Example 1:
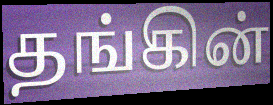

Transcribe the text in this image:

தங்கின்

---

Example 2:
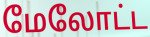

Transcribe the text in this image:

மேலோட்ட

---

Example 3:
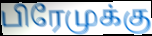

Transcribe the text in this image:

பிரேமுக்கு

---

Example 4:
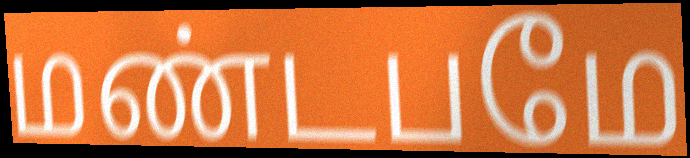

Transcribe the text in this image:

மண்டபமே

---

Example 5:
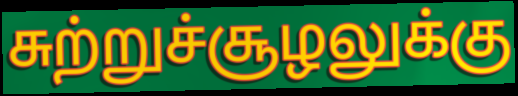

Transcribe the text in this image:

சுற்றுச்சூழலுக்கு